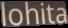
lohita